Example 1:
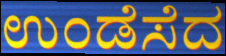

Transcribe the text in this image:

ಉಂಡೆಸೆದ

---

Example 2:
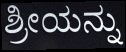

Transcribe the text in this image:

ಶ್ರೀಯನ್ನು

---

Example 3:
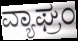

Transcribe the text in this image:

ವ್ಯಾಘ್ರಂ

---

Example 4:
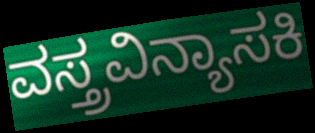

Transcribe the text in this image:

ವಸ್ತ್ರವಿನ್ಯಾಸಕಿ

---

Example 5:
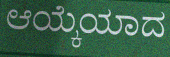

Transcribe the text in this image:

ಆಯ್ಕೆಯಾದ